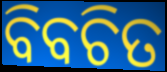
ବିବଚିତ